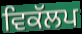
ਵਿਕੱਲਪ